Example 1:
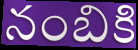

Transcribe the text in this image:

నంబికి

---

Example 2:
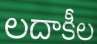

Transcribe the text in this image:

లదాకీల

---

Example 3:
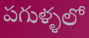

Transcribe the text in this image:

పగుళ్ళలో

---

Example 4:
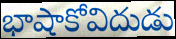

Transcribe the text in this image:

భాషాకోవిదుడు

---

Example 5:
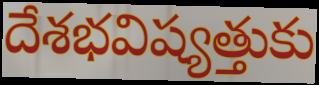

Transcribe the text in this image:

దేశభవిష్యత్తుకు